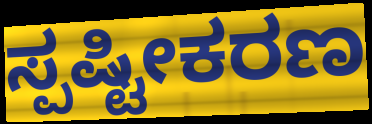
ಸ್ಪಷ್ಟೀಕರಣ